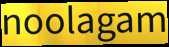
noolagam